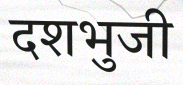
दशभुजी